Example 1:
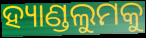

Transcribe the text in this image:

ହ୍ୟାଣ୍ଡଲୁମକୁ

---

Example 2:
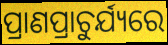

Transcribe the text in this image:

ପ୍ରାଣପ୍ରାଚୁର୍ଯ୍ୟରେ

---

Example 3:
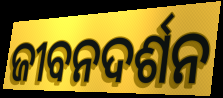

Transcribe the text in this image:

ଜୀବନଦର୍ଶନ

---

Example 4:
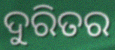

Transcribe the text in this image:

ଦୁରିତର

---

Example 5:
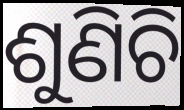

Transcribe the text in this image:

ଶୁଣିଚି